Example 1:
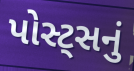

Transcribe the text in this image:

પોસ્ટ્સનું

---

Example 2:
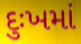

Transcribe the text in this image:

દુઃખમાં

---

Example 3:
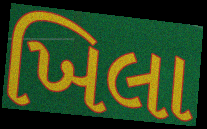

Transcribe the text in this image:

ખિલા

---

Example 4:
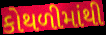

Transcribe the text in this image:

કોથળીમાંથી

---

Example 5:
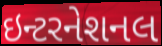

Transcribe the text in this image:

ઇન્ટરનેશનલ